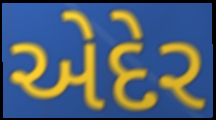
એદેર